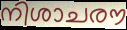
നിശാചരൗ